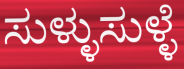
ಸುಳ್ಳುಸುಳ್ಳೆ